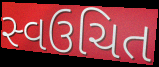
સ્વઉચિત